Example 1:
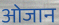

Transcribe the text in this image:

ओजान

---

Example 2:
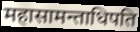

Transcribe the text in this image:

महासामन्ताधिपति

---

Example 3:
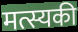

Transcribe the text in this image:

मत्स्यकी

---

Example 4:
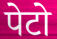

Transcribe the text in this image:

पेटो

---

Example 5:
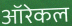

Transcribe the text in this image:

ऑरेकल